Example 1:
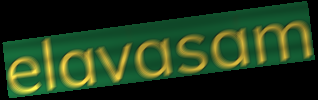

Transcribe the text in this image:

elavasam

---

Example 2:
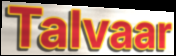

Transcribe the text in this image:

Talvaar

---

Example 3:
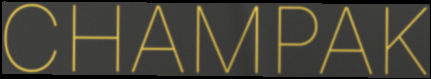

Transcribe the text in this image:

CHAMPAK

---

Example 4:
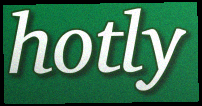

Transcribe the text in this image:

hotly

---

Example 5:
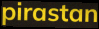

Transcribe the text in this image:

pirastan